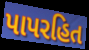
પાપરહિત